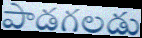
పాడగలడు